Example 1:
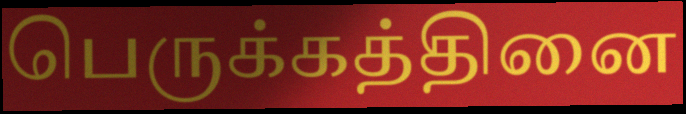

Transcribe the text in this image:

பெருக்கத்தினை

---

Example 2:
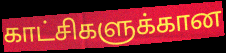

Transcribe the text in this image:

காட்சிகளுக்கான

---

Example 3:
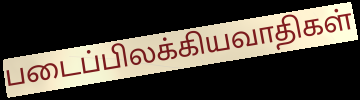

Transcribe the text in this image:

படைப்பிலக்கியவாதிகள்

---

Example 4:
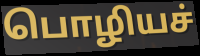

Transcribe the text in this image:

பொழியச்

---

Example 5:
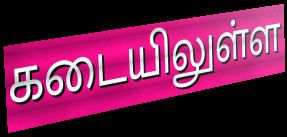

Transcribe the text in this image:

கடையிலுள்ள